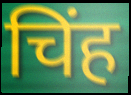
चिंह